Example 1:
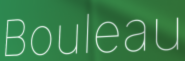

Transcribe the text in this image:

Bouleau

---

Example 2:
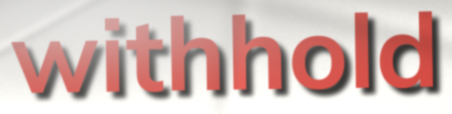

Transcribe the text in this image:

withhold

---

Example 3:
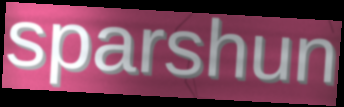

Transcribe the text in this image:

sparshun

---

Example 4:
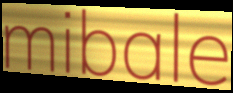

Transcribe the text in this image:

mibale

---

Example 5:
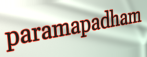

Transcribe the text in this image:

paramapadham